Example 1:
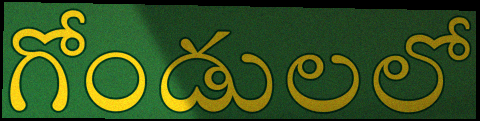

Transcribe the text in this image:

గోండులలో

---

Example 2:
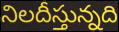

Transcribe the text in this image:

నిలదీస్తున్నది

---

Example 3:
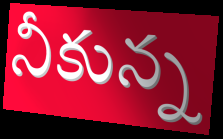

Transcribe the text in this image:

నీకున్న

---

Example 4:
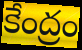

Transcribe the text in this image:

కేంద్రం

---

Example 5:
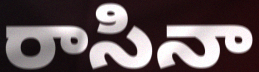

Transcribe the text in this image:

రాసినా